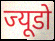
ज्यूडो